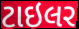
ટાઇલર